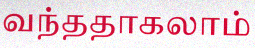
வந்ததாகலாம்